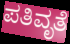
ಪತಿವೃತೆ